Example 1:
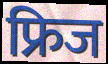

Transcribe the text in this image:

फ्रिज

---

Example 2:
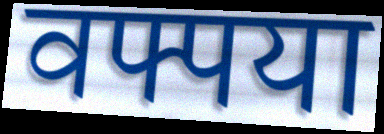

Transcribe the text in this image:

वफ्पया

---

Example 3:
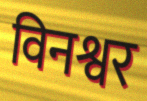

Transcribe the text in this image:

विनश्वर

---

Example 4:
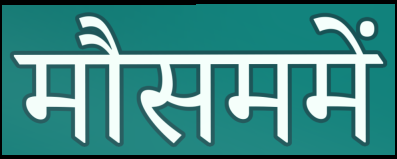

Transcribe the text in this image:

मौसममें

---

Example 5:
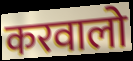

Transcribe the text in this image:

करवालो